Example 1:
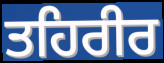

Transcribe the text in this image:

ਤਹਿਰੀਰ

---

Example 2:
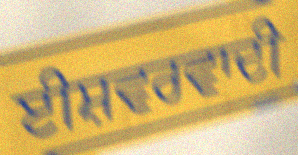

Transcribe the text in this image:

ਈਸ਼ਵਰਵਾਦੀ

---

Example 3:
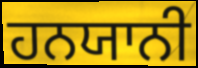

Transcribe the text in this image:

ਹਨਯਾਨੀ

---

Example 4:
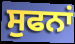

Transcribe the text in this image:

ਸੁਫਨਾਂ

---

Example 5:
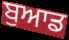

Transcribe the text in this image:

ਬੁਆਡ